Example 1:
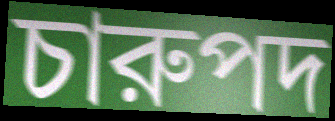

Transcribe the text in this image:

চারুপদ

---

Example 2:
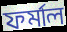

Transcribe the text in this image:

ফর্মাল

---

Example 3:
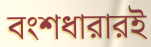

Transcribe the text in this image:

বংশধারারই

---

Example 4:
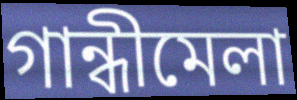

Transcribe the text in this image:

গান্ধীমেলা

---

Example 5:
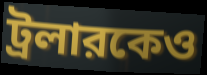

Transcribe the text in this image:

ট্রলারকেও